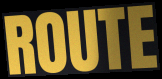
ROUTE